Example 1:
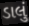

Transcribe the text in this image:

ડાલું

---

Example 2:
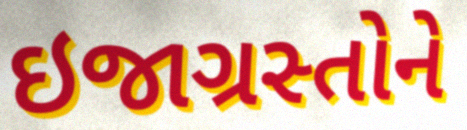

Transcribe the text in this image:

ઇજાગ્રસ્તોને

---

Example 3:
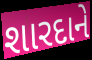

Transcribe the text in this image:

શારદાને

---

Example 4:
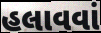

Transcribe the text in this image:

હલાવવાં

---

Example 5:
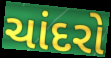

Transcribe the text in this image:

ચાંદરો